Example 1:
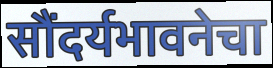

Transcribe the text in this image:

सौंदर्यभावनेचा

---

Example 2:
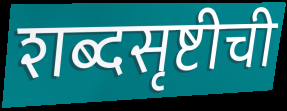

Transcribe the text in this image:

शब्दसृष्टीची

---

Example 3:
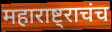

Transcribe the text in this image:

महाराष्ट्राचंच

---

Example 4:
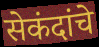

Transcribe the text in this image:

सेकंदांचे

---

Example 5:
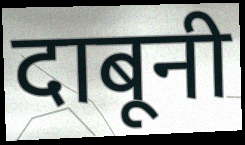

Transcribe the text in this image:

दाबूनी